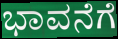
ಭಾವನೆಗೆ